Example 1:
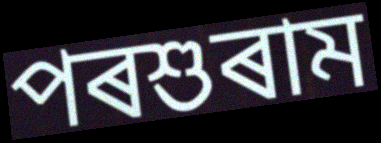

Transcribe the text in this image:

পৰশুৰাম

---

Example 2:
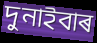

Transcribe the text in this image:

দুনাইবাৰ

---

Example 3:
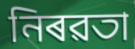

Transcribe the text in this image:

নিৰৱতা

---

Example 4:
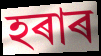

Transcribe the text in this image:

হৰাৰ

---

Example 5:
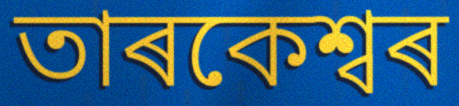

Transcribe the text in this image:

তাৰকেশ্বৰ